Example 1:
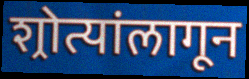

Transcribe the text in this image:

श्रोत्यांलागून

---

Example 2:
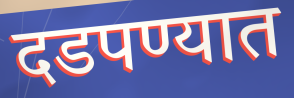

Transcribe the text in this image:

दडपण्यात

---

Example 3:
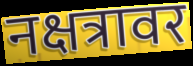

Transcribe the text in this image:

नक्षत्रावर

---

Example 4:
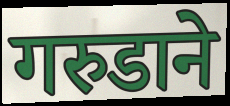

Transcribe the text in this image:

गरुडाने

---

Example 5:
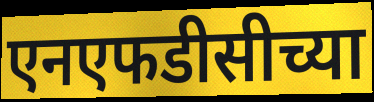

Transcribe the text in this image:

एनएफडीसीच्या